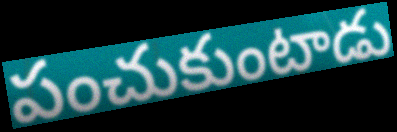
పంచుకుంటాడు